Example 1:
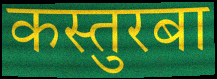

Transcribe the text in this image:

कस्तुरबा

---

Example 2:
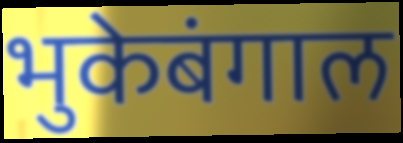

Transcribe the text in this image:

भुकेबंगाल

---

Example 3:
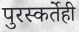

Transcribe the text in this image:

पुरस्कर्तेही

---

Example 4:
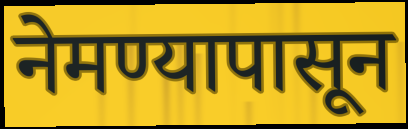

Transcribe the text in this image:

नेमण्यापासून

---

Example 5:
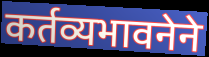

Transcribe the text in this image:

कर्तव्यभावनेने